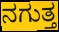
ನಗುತ್ತ